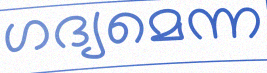
ഗദ്യമെന്ന